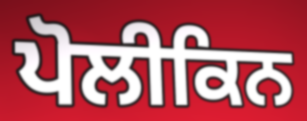
ਪੋਲੀਕਿਨ